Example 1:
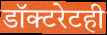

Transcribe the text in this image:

डॉक्‍टरेटही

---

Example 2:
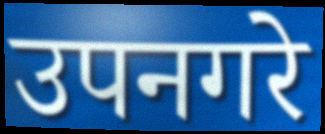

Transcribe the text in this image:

उपनगरे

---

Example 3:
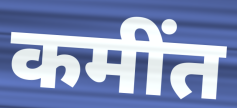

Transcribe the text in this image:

कमींत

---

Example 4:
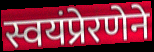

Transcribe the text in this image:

स्वयंप्रेरणेने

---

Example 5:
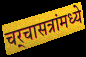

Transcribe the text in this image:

चर्चासत्रांमध्ये